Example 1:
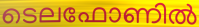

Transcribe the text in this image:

ടെലഫോണിൽ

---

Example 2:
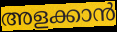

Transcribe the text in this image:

അളക്കാൻ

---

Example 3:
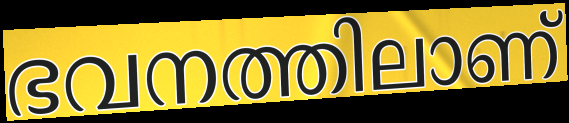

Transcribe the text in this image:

ഭവനത്തിലാണ്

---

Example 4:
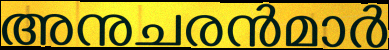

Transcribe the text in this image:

അനുചരൻമാർ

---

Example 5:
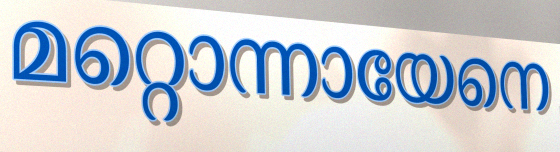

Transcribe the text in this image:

മറ്റൊന്നായേനെ